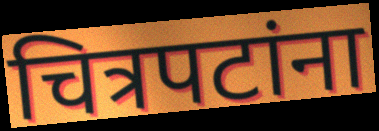
चित्रपटांना